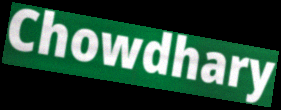
Chowdhary